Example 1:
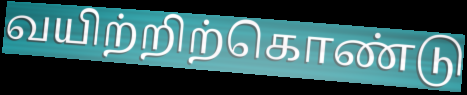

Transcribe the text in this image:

வயிற்றிற்கொண்டு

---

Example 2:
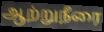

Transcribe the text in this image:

ஆற்றுநீரை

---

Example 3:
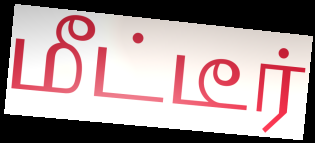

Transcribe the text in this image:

மீட்டீர்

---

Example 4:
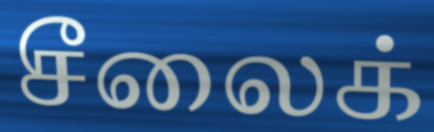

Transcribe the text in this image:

சீலைக்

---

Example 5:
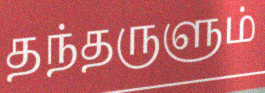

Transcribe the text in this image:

தந்தருளும்